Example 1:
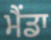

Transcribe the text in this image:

ਮੈਂਡਾ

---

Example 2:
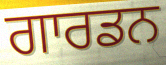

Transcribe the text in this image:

ਗਾਰਡਨ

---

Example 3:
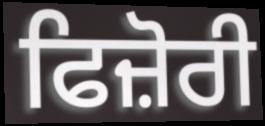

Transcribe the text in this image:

ਫਿਜ਼ੋਰੀ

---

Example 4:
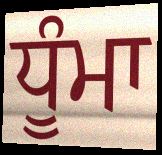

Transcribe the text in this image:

ਧੂੰਮਾ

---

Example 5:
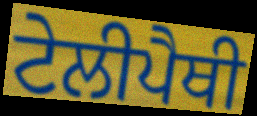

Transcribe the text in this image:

ਟੇਲੀਪੈਥੀ